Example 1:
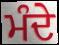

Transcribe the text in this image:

ਮੰਦੇ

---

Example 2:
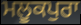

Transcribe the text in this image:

ਮਲੂਕਪੁਰਾ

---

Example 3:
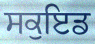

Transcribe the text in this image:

ਸਕੁਇਡ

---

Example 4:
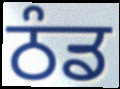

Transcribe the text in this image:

ਠੰਡ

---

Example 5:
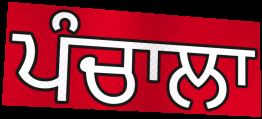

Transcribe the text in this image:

ਪੰਚਾਲਾ